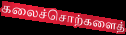
கலைச்சொற்களைத்